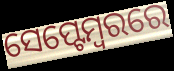
ସେପ୍ଟେମ୍ୱରରେ